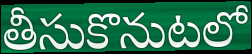
తీసుకొనుటలో